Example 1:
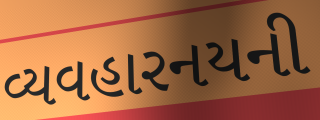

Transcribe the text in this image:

વ્યવહારનયની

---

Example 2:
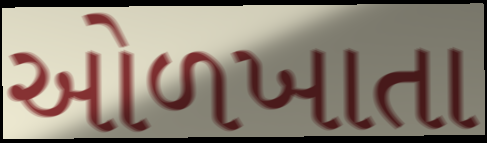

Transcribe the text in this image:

ઓળખાતા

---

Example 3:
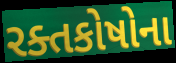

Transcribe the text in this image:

રક્તકોષોના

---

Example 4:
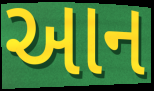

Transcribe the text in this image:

આન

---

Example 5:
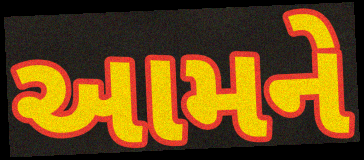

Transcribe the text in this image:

આમને